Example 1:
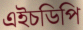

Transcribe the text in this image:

এইচডিপি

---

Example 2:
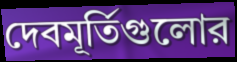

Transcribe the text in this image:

দেবমূর্তিগুলোর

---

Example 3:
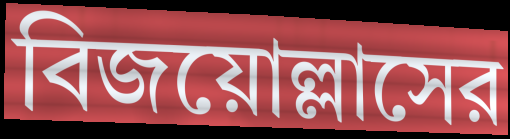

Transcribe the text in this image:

বিজয়োল্লাসের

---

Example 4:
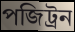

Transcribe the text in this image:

পজিট্রন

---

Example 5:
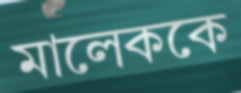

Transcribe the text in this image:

মালেককে